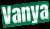
Vanya